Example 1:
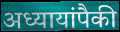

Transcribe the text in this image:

अध्यायांपैकी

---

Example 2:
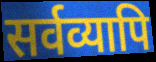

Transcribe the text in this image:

सर्वव्यापि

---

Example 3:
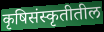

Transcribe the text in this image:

कृषिसंस्कृतीतील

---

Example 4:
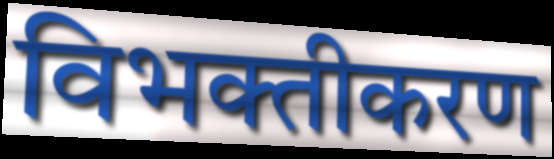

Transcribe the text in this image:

विभक्तीकरण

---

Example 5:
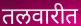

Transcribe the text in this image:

तलवारीत